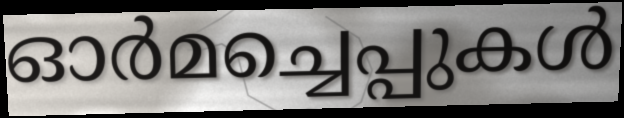
ഓർമച്ചെപ്പുകൾ